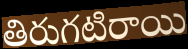
తిరుగటిరాయి